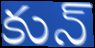
కున్